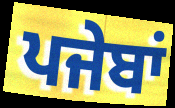
ਪਜੇਬਾਂ